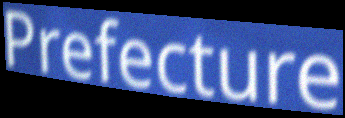
Prefecture